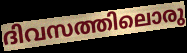
ദിവസത്തിലൊരു